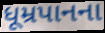
ધૂમ્રપાનના